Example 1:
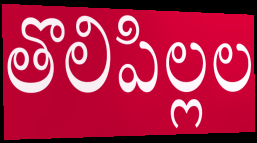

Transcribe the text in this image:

తొలిపిల్లల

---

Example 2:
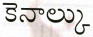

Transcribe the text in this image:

కెనాల్కు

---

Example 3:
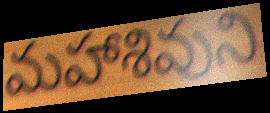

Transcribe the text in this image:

మహాశివుని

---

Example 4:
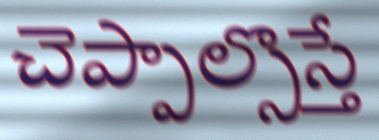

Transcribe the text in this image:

చెప్పాల్సొస్తే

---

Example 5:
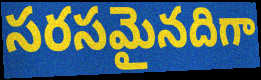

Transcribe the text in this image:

సరసమైనదిగా